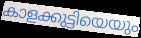
കാളക്കുട്ടിയെയും